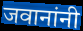
जवानांनी